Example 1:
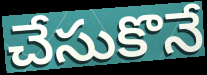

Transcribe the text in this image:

చేసుకొనే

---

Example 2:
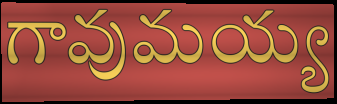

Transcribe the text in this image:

గావుమయ్య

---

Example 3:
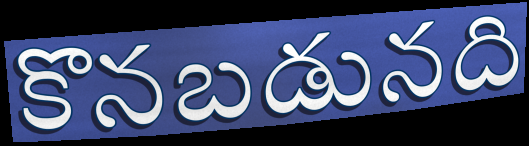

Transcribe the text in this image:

కొనబడునది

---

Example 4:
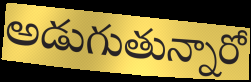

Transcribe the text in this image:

అడుగుతున్నారో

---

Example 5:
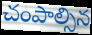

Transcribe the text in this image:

చంపాల్సిన